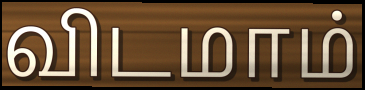
விடமாம்